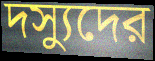
দস্যুদের